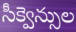
సీక్వెన్సుల